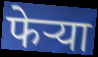
फेऱ्या